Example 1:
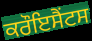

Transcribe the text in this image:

ਕਰੌਇਸੈਂਟਸ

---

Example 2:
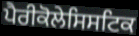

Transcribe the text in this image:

ਪੈਰੀਕੋਲੇਸਿਸਟਿਕ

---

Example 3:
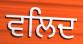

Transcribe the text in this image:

ਵਲਿਦ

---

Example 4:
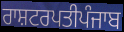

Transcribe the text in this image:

ਰਾਸ਼ਟਰਪਤੀਪੰਜਾਬ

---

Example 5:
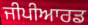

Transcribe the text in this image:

ਜੀਪੀਆਰਡ